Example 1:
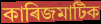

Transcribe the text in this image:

কাৰিজমাটিক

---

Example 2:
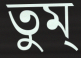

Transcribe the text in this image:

তুম্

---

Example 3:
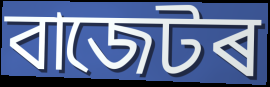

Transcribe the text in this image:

বাজেটৰ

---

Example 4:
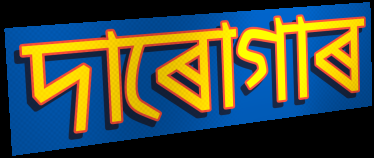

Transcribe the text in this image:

দাৰোগাৰ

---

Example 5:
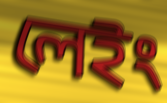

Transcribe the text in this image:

লেইং